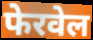
फेरवेल